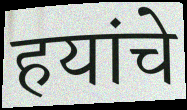
हयांचे